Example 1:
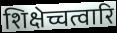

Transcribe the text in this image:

शिक्षेच्चत्वारि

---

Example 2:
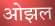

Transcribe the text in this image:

ओझल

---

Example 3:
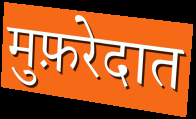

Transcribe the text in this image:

मुफ़रेदात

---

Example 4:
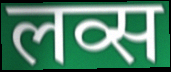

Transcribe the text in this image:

लव्स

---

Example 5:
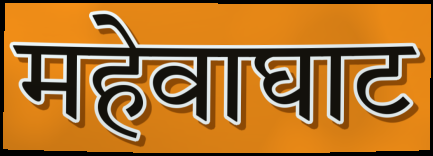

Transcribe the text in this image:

महेवाघाट